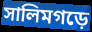
সালিমগড়ে